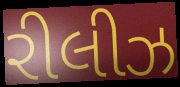
રીલીઝ